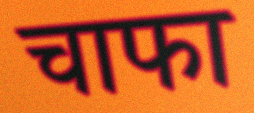
चाफा